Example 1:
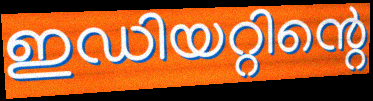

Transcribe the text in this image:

ഇഡിയറ്റിന്റെ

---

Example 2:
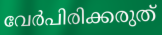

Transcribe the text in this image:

വേർപിരിക്കരുത്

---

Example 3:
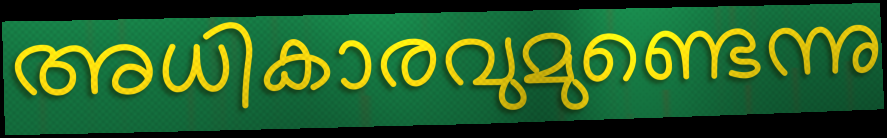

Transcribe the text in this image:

അധികാരവുമുണ്ടെന്നു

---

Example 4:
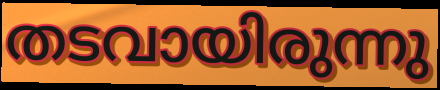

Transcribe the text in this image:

തടവായിരുന്നു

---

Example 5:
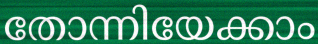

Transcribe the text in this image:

തോന്നിയേക്കാം